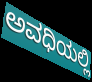
ಅವಧಿಯಲ್ಲಿ